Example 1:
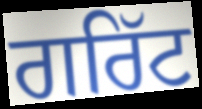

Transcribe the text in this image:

ਗਰਿੱਟ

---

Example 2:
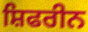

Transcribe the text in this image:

ਸ਼ਿਫਰੀਨ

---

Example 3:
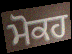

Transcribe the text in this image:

ਮੋਕਹ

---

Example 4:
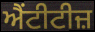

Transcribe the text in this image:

ਐਂਟੀਟੀਜ਼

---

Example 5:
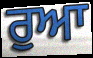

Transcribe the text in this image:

ਰੁਆ